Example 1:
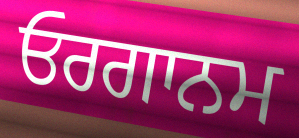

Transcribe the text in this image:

ਓਰਗਾਨਮ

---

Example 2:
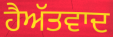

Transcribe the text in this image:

ਹੈਅੱਤਵਾਦ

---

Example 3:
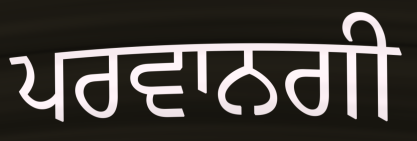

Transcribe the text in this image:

ਪਰਵਾਨਗੀ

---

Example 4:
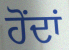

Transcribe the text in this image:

ਹੋਂਦਾਂ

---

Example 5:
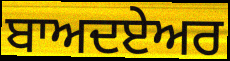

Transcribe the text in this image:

ਬਾਅਦਏਅਰ